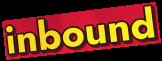
inbound